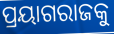
ପ୍ରୟାଗରାଜକୁ